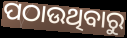
ପଠାଉଥିବାରୁ